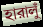
হারালুঁ